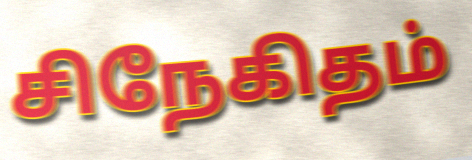
சிநேகிதம்